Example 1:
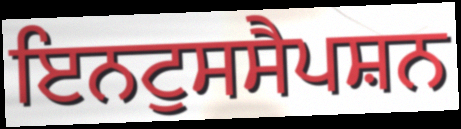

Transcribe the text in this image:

ਇਨਟੁਸਸੈਪਸ਼ਨ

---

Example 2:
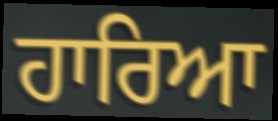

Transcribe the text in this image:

ਹਾਰਿਆ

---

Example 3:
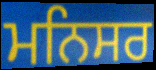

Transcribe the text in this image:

ਮਨਿਸਰ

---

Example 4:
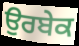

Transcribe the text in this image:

ਉਰਬੇਕ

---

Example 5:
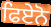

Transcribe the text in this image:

ਫਿਏਨੋ